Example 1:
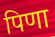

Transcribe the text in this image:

पिणा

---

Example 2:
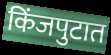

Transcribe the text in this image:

किंजपुटात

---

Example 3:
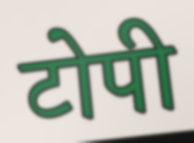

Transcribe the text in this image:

टोपी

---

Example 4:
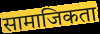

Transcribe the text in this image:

सामाजिकता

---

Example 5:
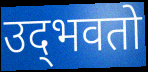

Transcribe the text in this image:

उद्‌भवतो